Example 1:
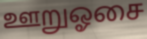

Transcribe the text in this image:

ஊறுஓசை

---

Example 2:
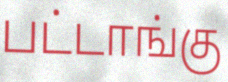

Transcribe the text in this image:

பட்டாங்கு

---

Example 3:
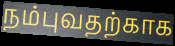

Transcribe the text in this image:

நம்புவதற்காக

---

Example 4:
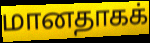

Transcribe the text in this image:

மானதாகக்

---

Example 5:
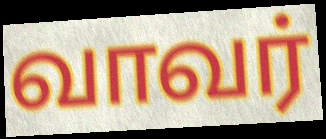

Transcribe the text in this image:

வாவர்